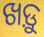
ଖଡ଼ୁ